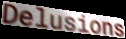
Delusions